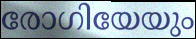
രോഗിയേയും